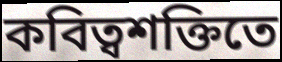
কবিত্বশক্তিতে